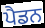
ਪੈਡਨ